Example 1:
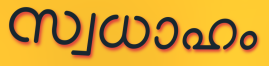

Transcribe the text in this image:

സ്വധാഹം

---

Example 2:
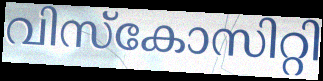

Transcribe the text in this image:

വിസ്കോസിറ്റി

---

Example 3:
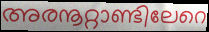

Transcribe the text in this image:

അരനൂറ്റാണ്ടിലേറെ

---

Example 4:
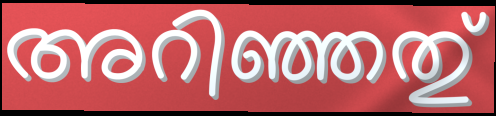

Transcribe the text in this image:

അറിഞ്ഞതു്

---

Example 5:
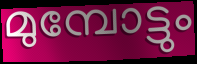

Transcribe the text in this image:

മുമ്പോട്ടും